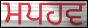
ਮਪਹਵ